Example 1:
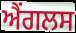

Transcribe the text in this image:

ਐਂਗਲਸ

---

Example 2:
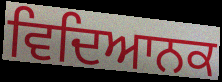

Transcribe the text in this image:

ਵਿਦਿਆਨਕ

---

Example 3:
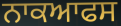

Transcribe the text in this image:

ਨਾਕਆਫਸ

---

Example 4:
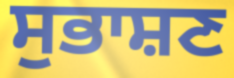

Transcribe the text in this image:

ਸੁਭਾਸ਼ਣ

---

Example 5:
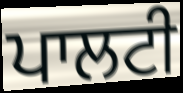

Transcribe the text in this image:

ਪਾਲਟੀ